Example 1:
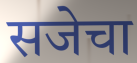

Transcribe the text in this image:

सजेचा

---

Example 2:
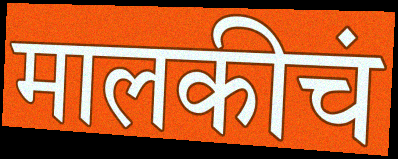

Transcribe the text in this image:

मालकीचं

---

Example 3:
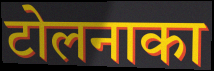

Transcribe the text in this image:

टोलनाका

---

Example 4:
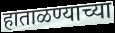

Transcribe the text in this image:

हाताळण्याच्या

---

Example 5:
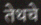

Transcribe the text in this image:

तेथचे